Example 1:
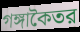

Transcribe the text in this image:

গঙ্গাকৈতর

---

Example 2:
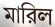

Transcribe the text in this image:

মারিল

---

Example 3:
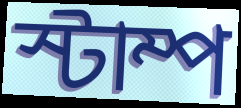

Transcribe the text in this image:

স্টাম্প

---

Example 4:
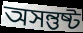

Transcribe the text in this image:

অসন্তুষ্ট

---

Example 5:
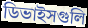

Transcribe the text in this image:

ডিভাইসগুলি